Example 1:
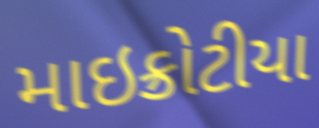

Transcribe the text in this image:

માઇક્રોટીયા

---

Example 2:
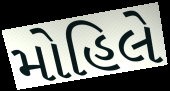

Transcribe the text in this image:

મોહિલે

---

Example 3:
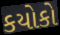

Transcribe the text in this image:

કયોકો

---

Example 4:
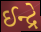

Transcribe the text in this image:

ઈન્દ્રે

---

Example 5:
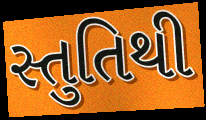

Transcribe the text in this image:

સ્તુતિથી